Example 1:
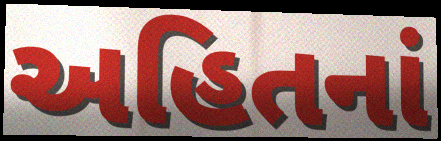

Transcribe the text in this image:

અહિતનાં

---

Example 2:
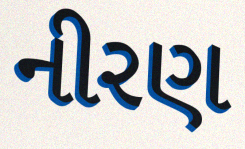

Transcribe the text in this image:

નીરણ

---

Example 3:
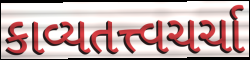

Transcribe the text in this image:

કાવ્યતત્ત્વચર્ચા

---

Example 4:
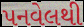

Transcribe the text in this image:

પનવેલથી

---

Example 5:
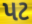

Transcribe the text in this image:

પટ